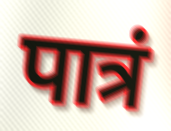
पात्रं